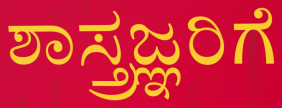
ಶಾಸ್ತ್ರಜ್ಞರಿಗೆ